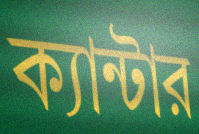
ক্যান্টার